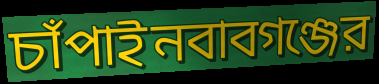
চাঁপাইনবাবগঞ্জের